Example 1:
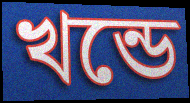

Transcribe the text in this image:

খন্ডে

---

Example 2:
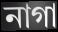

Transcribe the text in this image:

নাগা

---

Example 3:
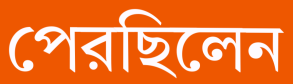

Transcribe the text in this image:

পেরছিলেন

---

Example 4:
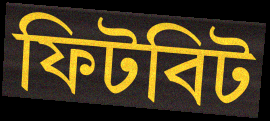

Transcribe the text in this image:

ফিটবিট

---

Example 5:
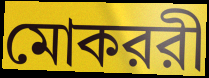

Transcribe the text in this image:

মোকররী